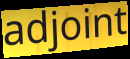
adjoint